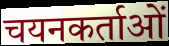
चयनकर्ताओं